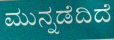
ಮುನ್ನಡೆದಿದೆ